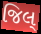
જિલ્